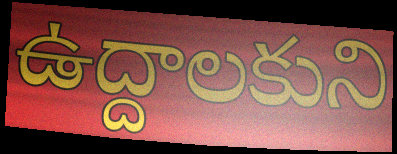
ఉద్దాలకుని